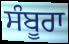
ਸੰਬੂਰਾ